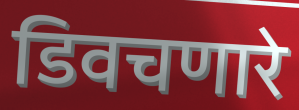
डिवचणारे